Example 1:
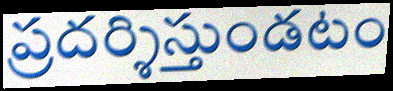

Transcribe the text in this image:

ప్రదర్శిస్తుండటం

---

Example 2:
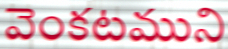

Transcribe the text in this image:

వెంకటముని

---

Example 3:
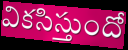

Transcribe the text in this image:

వికసిస్తుందో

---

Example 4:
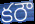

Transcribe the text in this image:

కరౌ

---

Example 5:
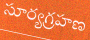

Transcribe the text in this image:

సూర్యగ్రహణ